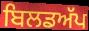
ਬਿਲਡਅੱਪ